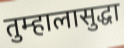
तुम्हालासुद्धा